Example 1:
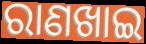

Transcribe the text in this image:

ରାଣଖାଇ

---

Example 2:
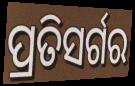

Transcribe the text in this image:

ପ୍ରତିସର୍ଗର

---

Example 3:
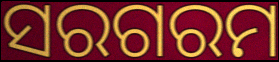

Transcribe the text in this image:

ସରଗରମ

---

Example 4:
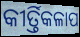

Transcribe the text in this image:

କୀର୍ତ୍ତିକଳାପ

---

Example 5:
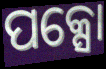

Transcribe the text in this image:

ପକ୍ସୋ